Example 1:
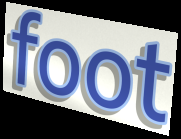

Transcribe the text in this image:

foot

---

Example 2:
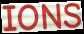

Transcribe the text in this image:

IONS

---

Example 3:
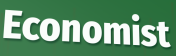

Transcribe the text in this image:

Economist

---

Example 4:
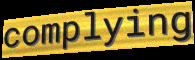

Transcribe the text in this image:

complying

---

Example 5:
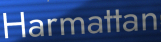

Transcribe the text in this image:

Harmattan